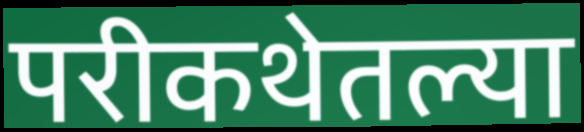
परीकथेतल्या